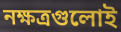
নক্ষত্রগুলোই